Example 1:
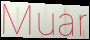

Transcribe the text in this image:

Muar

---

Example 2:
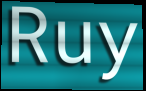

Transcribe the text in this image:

Ruy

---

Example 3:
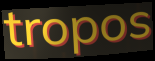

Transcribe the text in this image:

tropos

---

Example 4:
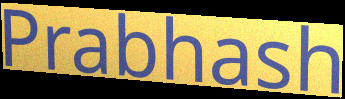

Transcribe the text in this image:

Prabhash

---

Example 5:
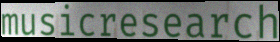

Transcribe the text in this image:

musicresearch